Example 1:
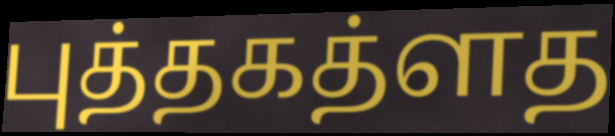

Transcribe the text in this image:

புத்தகத்ளத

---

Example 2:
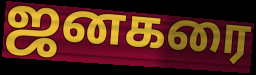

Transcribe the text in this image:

ஜனகரை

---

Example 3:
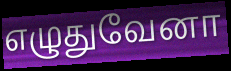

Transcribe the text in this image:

எழுதுவேனா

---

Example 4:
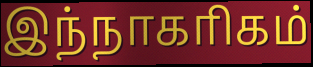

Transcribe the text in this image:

இந்நாகரிகம்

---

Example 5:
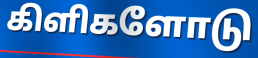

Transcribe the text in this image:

கிளிகளோடு